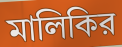
মালিকির